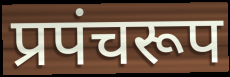
प्रपंचरूप